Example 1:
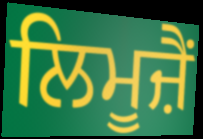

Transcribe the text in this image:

ਲਿਮੂਜ਼ੈਂ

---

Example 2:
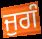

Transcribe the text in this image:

ਜੁਗੰ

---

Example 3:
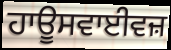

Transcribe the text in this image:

ਹਾਊਸਵਾਈਵਜ਼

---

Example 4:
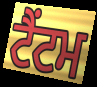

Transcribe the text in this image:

ਟੈਂਟਮ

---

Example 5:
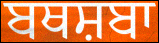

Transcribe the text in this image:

ਬਥਸ਼ਬਾ